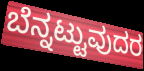
ಬೆನ್ನಟ್ಟುವುದರ